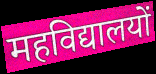
महविद्यालयों